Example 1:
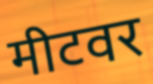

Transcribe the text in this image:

मीटवर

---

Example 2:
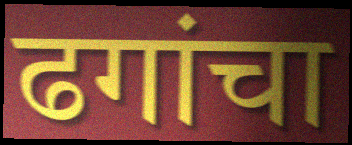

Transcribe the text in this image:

ढगांचा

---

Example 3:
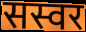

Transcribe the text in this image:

सस्वर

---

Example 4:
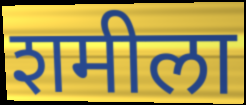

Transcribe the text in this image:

शमीला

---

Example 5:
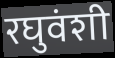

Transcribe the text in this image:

रघुवंशी